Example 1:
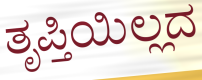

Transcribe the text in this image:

ತೃಪ್ತಿಯಿಲ್ಲದ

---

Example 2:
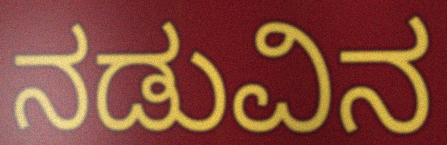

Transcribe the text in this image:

ನಡುವಿನ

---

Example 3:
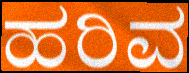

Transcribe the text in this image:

ಹರಿವ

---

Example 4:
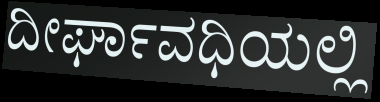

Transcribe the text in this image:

ದೀರ್ಘಾವಧಿಯಲ್ಲಿ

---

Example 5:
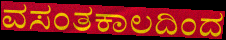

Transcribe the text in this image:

ವಸಂತಕಾಲದಿಂದ